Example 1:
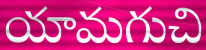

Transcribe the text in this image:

యామగుచి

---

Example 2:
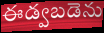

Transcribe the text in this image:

ఈడ్వబడెను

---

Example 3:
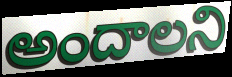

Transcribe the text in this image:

అందాలని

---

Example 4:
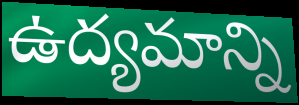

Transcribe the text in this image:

ఉద్యమాన్ని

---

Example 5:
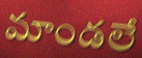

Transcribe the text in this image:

మాండలే